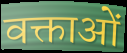
वक्ताओें